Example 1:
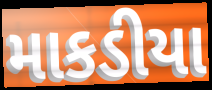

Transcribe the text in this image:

માકડીયા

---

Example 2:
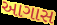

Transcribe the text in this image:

આગાસ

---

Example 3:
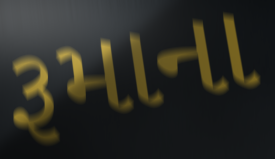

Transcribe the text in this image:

રૂમાના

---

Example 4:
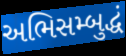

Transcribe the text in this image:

અભિસમ્બુદ્ધં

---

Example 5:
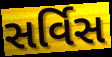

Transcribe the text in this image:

સર્વિસ